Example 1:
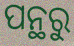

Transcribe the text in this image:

ପନ୍ଥରୁ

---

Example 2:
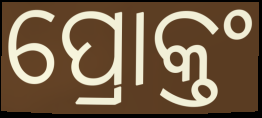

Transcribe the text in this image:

ପ୍ରୋକ୍ତଂ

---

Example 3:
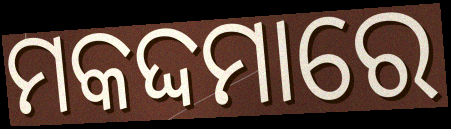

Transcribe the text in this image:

ମକଦ୍ଦମାରେ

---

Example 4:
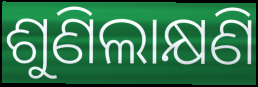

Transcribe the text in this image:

ଶୁଣିଲାକ୍ଷଣି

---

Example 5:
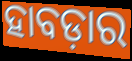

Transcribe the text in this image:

ହାବଡ଼ାର